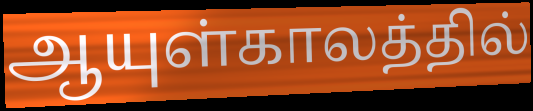
ஆயுள்காலத்தில்